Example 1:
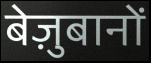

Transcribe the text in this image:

बेज़ुबानों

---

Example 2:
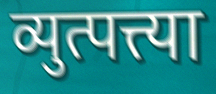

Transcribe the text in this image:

व्युत्पत्त्या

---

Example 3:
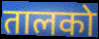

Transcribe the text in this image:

तालको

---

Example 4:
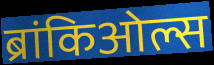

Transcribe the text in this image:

ब्रांकिओल्स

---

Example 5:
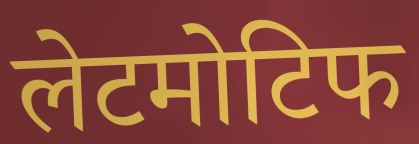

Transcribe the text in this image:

लेटमोटिफ